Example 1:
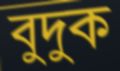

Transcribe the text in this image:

বুদুক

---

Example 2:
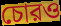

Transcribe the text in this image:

চোরও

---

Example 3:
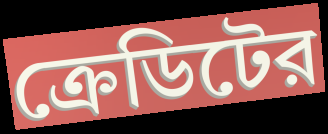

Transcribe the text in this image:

ক্রেডিটের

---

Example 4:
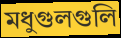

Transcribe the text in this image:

মধুগুলগুলি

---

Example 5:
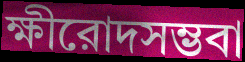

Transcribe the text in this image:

ক্ষীরোদসম্ভবা